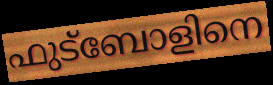
ഫുട്ബോളിനെ